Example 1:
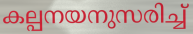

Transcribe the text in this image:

കല്പനയനുസരിച്ച്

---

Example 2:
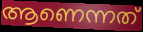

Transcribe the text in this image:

ആണെന്നത്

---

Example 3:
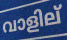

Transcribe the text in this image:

വാളില്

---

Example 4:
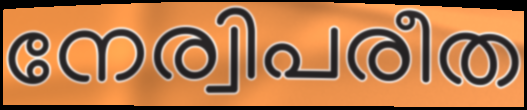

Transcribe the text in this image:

നേര്വിപരീത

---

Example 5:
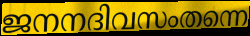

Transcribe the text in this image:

ജനനദിവസംതന്നെ